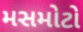
મસમોટો